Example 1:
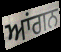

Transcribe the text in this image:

ਆਂਗਨ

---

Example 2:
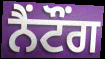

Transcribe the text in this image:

ਨੈਂਟੌਂਗ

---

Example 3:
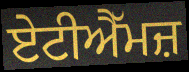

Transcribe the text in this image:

ਏਟੀਐੱਮਜ਼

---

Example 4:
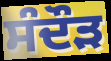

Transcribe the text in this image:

ਸੰਦੌੜ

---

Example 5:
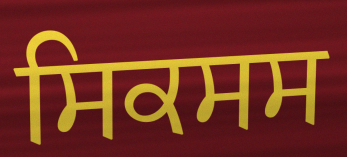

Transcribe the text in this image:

ਸਿਕਸਸ